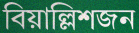
বিয়াল্লিশজন